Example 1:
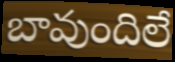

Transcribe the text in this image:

బావుందిలే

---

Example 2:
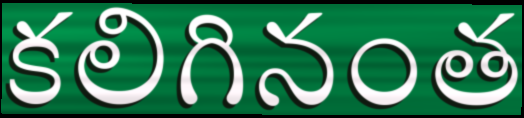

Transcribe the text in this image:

కలిగినంత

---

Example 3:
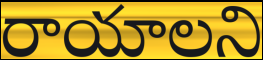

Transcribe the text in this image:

రాయాలని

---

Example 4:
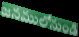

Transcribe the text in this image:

జనములోనుండి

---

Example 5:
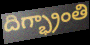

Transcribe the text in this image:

దిగ్భ్రాంతి